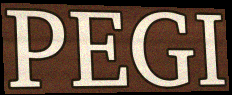
PEGI